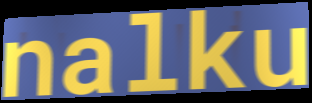
nalku